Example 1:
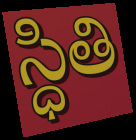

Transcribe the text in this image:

స్ధితి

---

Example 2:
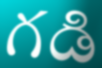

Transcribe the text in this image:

గడి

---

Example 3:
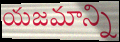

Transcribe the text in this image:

యజమాన్ని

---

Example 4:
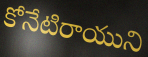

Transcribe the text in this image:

కోనేటిరాయుని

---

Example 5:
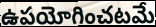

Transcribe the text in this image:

ఉపయోగించటమే